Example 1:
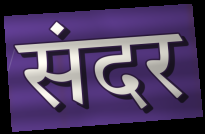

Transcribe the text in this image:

संदर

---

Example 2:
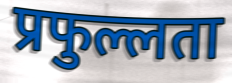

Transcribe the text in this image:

प्रफुल्लता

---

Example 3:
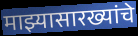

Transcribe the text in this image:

माझ्यासारख्यांचे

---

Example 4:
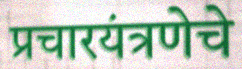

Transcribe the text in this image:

प्रचारयंत्रणेचे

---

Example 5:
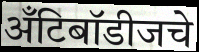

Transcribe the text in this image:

अँटिबॉडीजचे